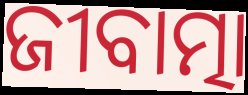
ଜୀବାତ୍ମା